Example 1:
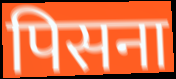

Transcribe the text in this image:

पिसना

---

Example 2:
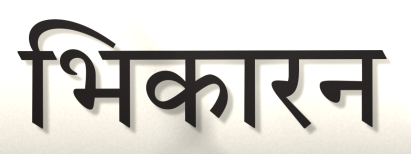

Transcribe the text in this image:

भिकारन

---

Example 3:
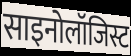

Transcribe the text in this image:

साइनोलॉजिस्ट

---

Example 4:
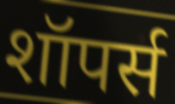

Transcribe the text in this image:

शॉपर्स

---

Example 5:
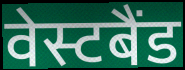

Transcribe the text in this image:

वेस्टबैंड